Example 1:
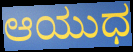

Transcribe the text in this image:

ಆಯುಧ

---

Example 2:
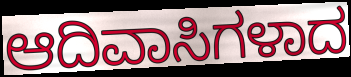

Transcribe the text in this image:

ಆದಿವಾಸಿಗಳಾದ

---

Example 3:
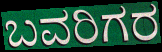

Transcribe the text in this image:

ಬವರಿಗರ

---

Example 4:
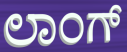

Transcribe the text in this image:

ಲಾಂಗ್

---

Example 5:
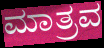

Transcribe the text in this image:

ಮಾತ್ರವ